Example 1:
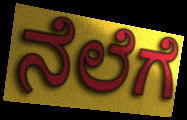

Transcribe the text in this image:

ನೆಲೆಗೆ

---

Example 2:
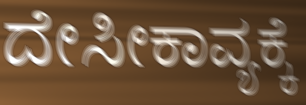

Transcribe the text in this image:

ದೇಸೀಕಾವ್ಯಕ್ಕೆ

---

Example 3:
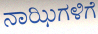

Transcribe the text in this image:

ನಾಝಿಗಳಿಗೆ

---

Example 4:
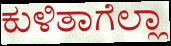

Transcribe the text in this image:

ಕುಳಿತಾಗೆಲ್ಲಾ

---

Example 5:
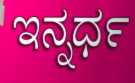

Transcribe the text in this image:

ಇನ್ನರ್ಧ